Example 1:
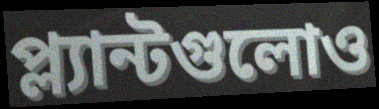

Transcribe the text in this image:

প্ল্যান্টগুলোও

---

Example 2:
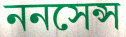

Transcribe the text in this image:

ননসেন্স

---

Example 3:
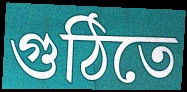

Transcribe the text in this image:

গুঠিতে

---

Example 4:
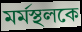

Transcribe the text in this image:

মর্মস্থলকে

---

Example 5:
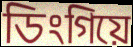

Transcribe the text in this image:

ডিংগিয়ে